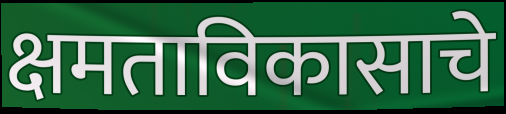
क्षमताविकासाचे